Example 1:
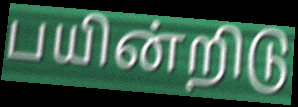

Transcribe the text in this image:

பயின்றிடு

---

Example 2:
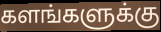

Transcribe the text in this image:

களங்களுக்கு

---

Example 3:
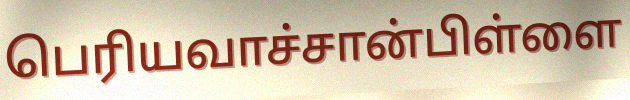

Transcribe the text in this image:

பெரியவாச்சான்பிள்ளை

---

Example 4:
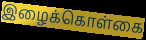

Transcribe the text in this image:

இழைக்கொள்கை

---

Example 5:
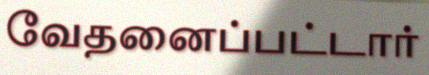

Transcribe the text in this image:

வேதனைப்பட்டார்